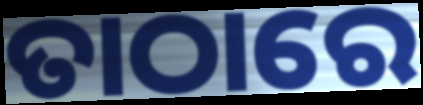
ତାଠାରେ